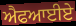
ਐਫਆਈਏ